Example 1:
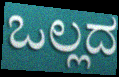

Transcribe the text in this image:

ಒಲ್ಲದ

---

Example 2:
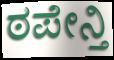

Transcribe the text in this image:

ಠಪೇನ್ತಿ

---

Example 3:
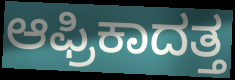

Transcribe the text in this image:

ಆಫ್ರಿಕಾದತ್ತ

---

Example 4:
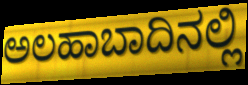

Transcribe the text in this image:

ಅಲಹಾಬಾದಿನಲ್ಲಿ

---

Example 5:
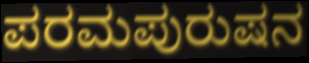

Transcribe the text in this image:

ಪರಮಪುರುಷನ